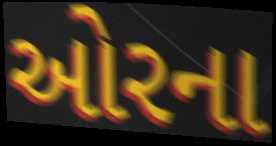
ઓરના